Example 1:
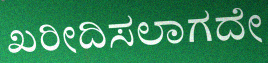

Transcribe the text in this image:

ಖರೀದಿಸಲಾಗದೇ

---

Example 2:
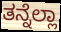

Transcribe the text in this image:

ತನ್ನೆಲ್ಲಾ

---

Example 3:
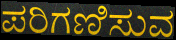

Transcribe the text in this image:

ಪರಿಗಣಿಸುವ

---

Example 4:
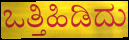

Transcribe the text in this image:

ಒತ್ತಿಹಿಡಿದು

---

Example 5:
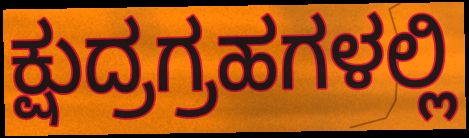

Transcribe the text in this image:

ಕ್ಷುದ್ರಗ್ರಹಗಳಲ್ಲಿ